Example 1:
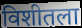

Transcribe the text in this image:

विशीतला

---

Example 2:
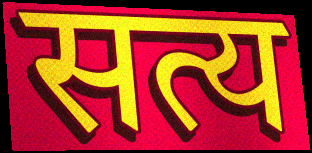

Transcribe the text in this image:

सत्य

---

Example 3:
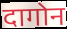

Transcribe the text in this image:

दागोन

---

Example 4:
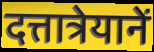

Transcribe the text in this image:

दत्तात्रेयानें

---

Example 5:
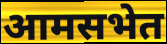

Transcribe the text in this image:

आमसभेत